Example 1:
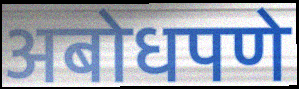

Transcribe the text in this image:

अबोधपणे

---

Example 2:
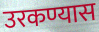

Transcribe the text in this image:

उरकण्यास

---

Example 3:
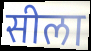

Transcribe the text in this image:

सीला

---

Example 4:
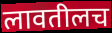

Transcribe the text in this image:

लावतीलच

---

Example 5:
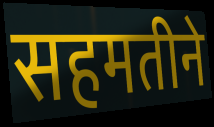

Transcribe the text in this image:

सहमतीने